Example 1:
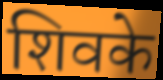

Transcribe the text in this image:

शिवके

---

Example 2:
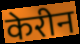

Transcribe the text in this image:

केरीन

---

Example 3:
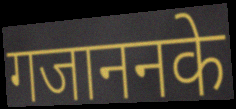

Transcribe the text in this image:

गजाननके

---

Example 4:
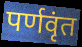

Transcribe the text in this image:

पर्णवृंत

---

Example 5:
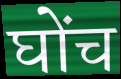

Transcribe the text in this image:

घोंच